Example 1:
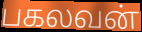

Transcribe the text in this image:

பகலவன்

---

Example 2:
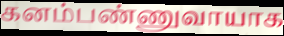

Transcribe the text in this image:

கனம்பண்ணுவாயாக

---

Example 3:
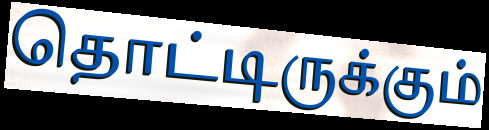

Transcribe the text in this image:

தொட்டிருக்கும்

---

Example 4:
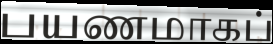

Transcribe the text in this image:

பயணமாகப்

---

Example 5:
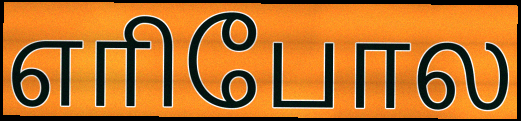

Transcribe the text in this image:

எரிபோல